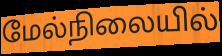
மேல்நிலையில்